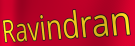
Ravindran